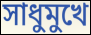
সাধুমুখে